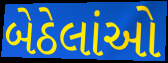
બેઠેલાંઓ